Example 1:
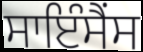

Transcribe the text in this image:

ਸਾਇੰਸੈਂਸ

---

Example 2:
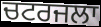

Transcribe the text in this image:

ਚਟਰਜਲਾ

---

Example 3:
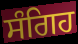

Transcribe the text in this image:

ਸੰਗਿਹ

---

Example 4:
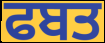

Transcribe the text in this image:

ਫਬਤ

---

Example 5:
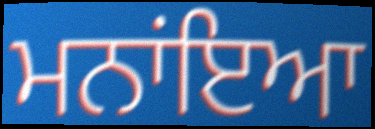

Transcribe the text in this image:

ਮਨਾਂਇਆ